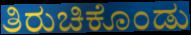
ತಿರುಚಿಕೊಂಡು